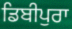
ਡਿਬੀਪੁਰਾ